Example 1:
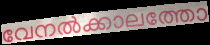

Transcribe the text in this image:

വേനൽക്കാലത്തോ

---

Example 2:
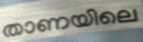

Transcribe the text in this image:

താണയിലെ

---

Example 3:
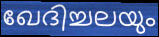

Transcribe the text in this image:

ഖേദിച്ചലയും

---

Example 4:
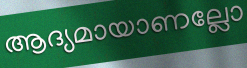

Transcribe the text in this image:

ആദ്യമായാണല്ലോ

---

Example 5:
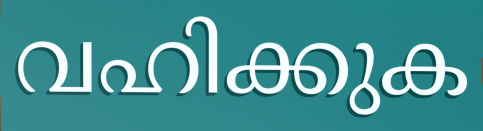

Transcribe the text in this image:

വഹിക്കുക